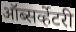
ऑब्सर्व्हेटरी